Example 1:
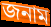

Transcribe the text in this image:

জনাম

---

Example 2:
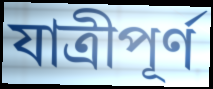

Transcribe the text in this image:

যাত্রীপূর্ণ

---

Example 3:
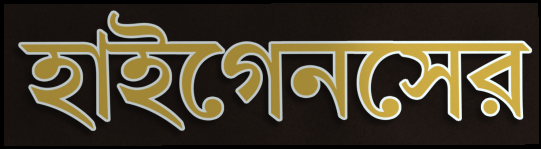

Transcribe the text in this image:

হাইগেনসের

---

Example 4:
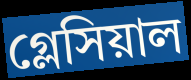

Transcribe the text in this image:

গ্লেসিয়াল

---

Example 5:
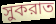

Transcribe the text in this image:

সুকরাত